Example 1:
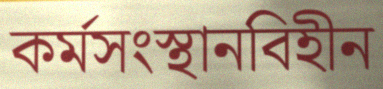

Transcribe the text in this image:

কর্মসংস্থানবিহীন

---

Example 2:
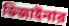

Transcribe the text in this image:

ডিজাইনার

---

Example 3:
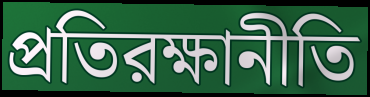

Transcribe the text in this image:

প্রতিরক্ষানীতি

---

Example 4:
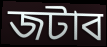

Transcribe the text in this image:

জটাব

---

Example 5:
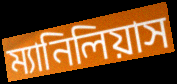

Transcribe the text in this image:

ম্যানিলিয়াস